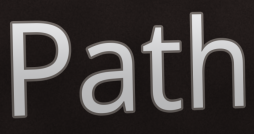
Path